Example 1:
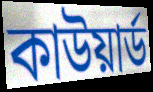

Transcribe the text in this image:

কাউয়ার্ড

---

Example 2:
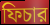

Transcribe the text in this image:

ফিচার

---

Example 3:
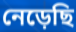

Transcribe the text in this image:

নেড়েছি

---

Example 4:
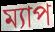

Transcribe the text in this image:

ম্যাপ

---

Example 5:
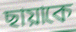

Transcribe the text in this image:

ছায়াকে